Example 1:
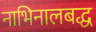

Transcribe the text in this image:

नाभिनालबद्ध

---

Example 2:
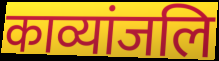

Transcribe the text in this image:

काव्यांजलि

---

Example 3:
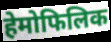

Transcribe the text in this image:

हेमोफिलिक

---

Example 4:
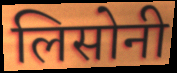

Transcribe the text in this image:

लिसोनी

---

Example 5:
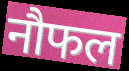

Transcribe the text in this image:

नौफल